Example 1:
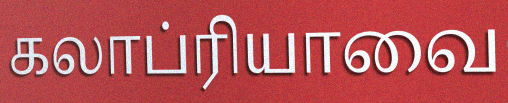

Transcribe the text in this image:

கலாப்ரியாவை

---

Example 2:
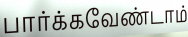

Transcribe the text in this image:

பார்க்கவேண்டாம்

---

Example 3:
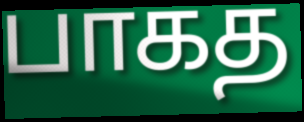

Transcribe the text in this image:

பாகத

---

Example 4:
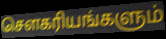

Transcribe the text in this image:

சௌகரியங்களும்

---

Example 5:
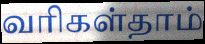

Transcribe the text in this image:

வரிகள்தாம்